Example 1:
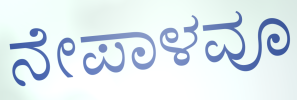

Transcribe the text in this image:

ನೇಪಾಳವೂ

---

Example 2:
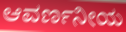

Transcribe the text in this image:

ಆವರ್ಣನೀಯ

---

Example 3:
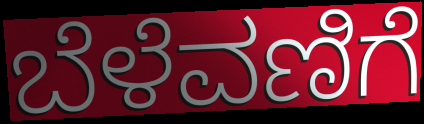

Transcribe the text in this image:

ಬೆಳೆವಣಿಗೆ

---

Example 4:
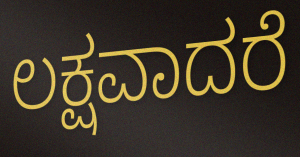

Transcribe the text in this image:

ಲಕ್ಷವಾದರೆ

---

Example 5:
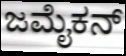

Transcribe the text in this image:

ಜಮೈಕನ್